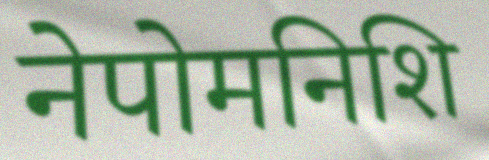
नेपोमनिशि